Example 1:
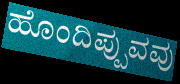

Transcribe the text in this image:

ಹೊಂದಿಪ್ಪುವವು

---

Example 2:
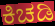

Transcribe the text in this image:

ಕಿಚಡಿ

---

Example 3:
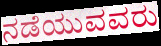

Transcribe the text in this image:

ನಡೆಯುವವರು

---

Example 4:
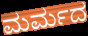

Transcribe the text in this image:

ಮರ್ಮದ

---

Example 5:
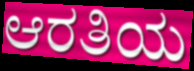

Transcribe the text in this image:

ಆರತಿಯ